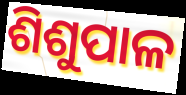
ଶିଶୁପାଳ